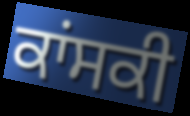
ਕਾਂਸਕੀ